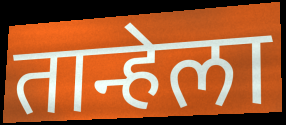
तान्हेला